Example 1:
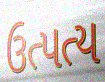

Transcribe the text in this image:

ઉત્પત્ય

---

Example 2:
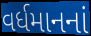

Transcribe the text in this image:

વર્ધમાનનાં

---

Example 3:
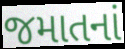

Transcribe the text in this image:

જમાતનાં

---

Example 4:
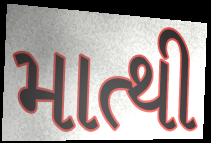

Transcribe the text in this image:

માત્થી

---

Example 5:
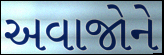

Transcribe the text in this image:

અવાજોને